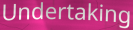
Undertaking